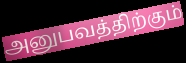
அனுபவத்திற்கும்